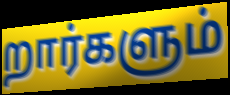
றார்களும்